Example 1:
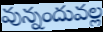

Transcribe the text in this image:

వున్నందువల్ల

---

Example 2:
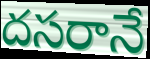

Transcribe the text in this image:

దసరానే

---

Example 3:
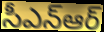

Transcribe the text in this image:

సీఎన్ఆర్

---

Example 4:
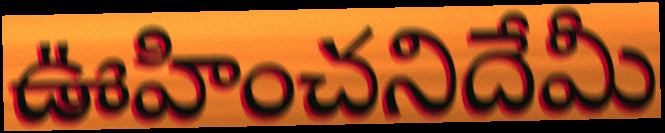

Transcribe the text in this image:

ఊహించనిదేమీ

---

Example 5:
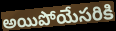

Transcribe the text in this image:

అయిపోయేసరికి